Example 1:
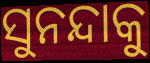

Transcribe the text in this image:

ସୁନନ୍ଦାକୁ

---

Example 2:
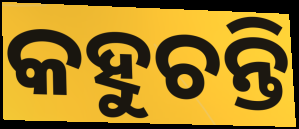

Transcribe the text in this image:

କହୁଚନ୍ତି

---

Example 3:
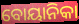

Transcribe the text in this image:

ବୋୟାନିକା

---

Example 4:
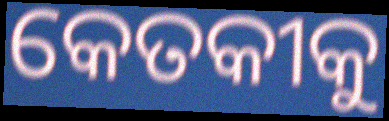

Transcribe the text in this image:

କେତକୀକୁ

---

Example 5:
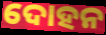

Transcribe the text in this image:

ଦୋହନ